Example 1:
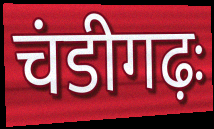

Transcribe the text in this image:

चंडीगढ़ः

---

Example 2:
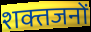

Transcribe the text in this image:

शक्तजनों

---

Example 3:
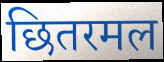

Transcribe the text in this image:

छितरमल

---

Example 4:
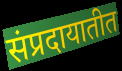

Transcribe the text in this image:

संप्रदायातीत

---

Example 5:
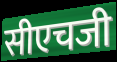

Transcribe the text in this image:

सीएचजी